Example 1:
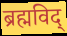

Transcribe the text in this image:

ब्रह्मविद्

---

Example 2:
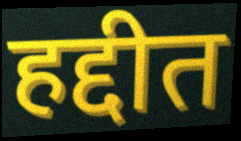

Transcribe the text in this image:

हद्दीत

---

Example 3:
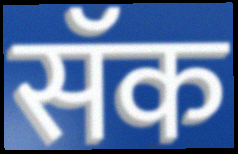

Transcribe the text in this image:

सॅक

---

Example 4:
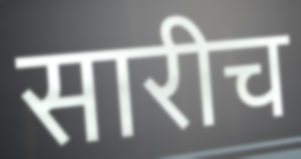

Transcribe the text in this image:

सारीच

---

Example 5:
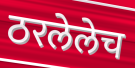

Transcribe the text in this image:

ठरलेलेच